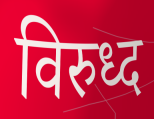
विरुध्द